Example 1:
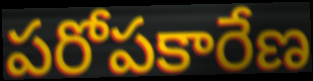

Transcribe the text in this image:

పరోపకారేణ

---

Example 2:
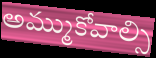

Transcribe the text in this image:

అమ్ముకోవాల్సి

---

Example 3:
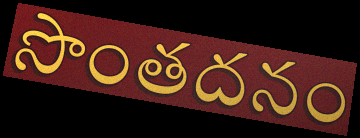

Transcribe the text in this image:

సొంతదనం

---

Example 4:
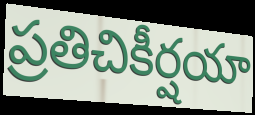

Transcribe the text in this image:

ప్రతిచికీర్షయా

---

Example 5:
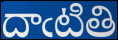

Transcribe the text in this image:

దాఁటితి